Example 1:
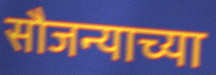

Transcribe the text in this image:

सौजन्याच्या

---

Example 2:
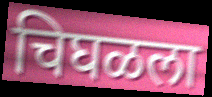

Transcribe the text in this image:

चिघळला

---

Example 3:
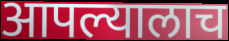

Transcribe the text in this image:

आपल्यालाच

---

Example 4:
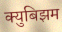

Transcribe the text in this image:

क्युबिझम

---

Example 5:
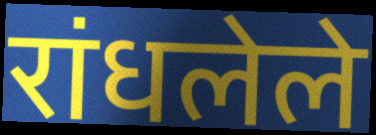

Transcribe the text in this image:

रांधलेले